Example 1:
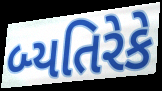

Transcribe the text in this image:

બ્યતિરેકે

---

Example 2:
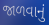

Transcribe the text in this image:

જાળવાનું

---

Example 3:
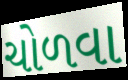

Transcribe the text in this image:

ચોળવા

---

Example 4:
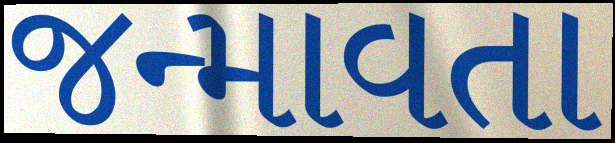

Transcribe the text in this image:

જન્માવતા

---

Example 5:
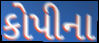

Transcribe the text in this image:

કોપીના